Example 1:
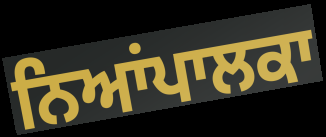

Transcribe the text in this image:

ਨਿਆਂਪਾਲਕਾ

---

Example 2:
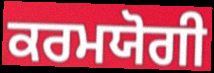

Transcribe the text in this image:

ਕਰਮਯੋਗੀ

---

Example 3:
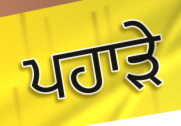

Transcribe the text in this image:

ਪਹਾੜੇ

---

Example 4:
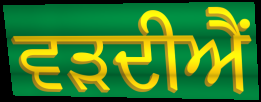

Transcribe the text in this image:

ਵੜਦੀਐਂ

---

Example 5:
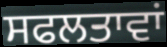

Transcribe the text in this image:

ਸਫਲਤਾਵਾਂ